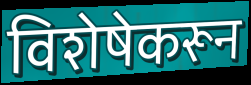
विशेषेकरून